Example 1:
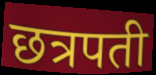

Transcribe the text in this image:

छत्रपती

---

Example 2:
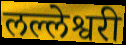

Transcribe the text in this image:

लल्लेश्वरी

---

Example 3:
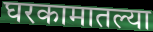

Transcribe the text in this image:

घरकामातल्या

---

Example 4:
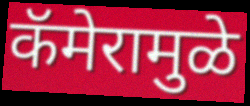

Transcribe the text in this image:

कॅमेरामुळे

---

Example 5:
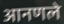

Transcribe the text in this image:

आनणले